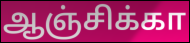
ஆஞ்சிக்கா